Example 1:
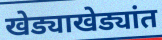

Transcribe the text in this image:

खेड्याखेड्यांत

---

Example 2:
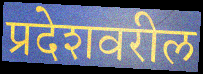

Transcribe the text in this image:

प्रदेशवरील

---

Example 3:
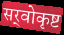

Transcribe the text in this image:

सर्वोकृष्ट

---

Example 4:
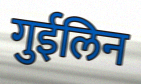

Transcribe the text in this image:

गुईलिन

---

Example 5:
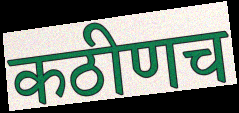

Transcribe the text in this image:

कठीणच